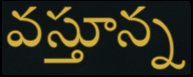
వస్తూన్న